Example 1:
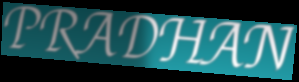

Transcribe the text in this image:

PRADHAN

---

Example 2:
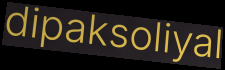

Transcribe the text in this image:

dipaksoliyal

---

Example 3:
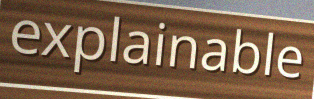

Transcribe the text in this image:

explainable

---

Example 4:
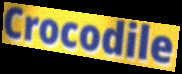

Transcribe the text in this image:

Crocodile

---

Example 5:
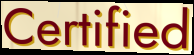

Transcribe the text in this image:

Certified